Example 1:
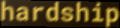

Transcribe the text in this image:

hardship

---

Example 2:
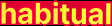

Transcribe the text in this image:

habitual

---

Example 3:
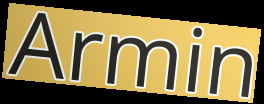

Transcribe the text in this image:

Armin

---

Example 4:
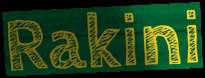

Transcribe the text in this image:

Rakini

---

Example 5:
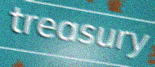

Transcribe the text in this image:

treasury